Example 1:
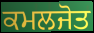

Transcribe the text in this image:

ਕਮਲਜੋਤ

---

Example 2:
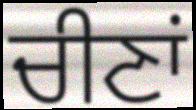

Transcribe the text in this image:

ਚੀਣਾਂ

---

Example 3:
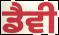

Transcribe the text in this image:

ਡੈਵੀ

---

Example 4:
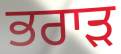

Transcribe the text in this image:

ਭਰਾੜ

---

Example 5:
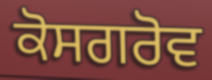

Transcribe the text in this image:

ਕੋਸਗਰੋਵ